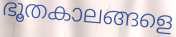
ഭൂതകാലങ്ങളെ